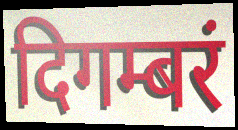
दिगम्बरं